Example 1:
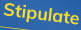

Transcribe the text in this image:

Stipulate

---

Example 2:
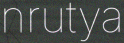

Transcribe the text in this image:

nrutya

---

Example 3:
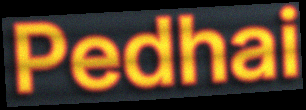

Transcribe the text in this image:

Pedhai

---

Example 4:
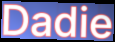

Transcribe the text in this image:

Dadie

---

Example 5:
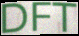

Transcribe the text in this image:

DFT